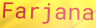
Farjana